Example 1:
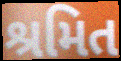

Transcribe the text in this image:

શ્રમિત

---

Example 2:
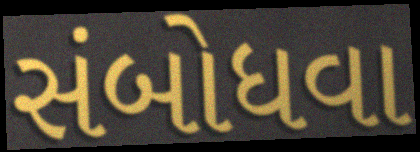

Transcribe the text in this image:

સંબોધવા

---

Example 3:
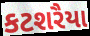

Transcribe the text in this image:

કટશરૈયા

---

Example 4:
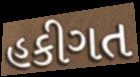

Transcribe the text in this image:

હકીગત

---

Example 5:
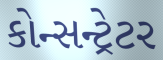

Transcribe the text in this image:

કોન્સન્ટ્રેટર